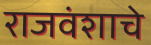
राजवंशाचे